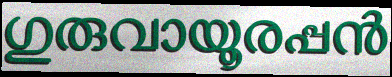
ഗുരുവായൂരപ്പൻ